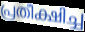
പ്രതീക്ഷിച്ച